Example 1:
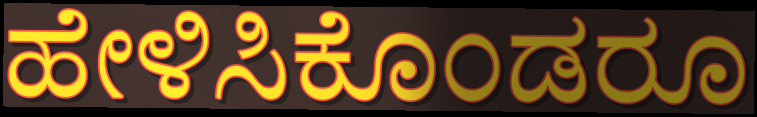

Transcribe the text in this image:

ಹೇಳಿಸಿಕೊಂಡರೂ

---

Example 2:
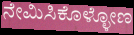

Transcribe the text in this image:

ನೇಮಿಸಿಕೊಳ್ಳೋಣ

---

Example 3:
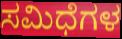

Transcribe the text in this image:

ಸಮಿಧೆಗಳ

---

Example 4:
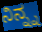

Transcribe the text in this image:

ನಿನ್ನ್ನ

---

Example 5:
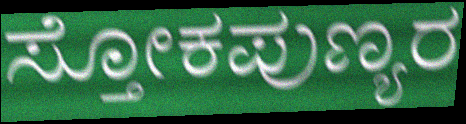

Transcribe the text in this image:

ಸ್ತೋಕಪುಣ್ಯರ